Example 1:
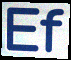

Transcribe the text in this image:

Ef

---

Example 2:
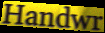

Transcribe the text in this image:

Handwr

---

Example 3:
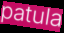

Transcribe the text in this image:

patula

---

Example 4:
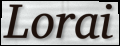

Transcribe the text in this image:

Lorai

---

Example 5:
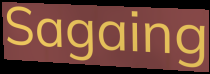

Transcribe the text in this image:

Sagaing